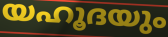
യഹൂദയും